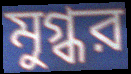
মুগ্ধর